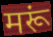
मरूं